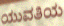
ಯುವತಿಯ